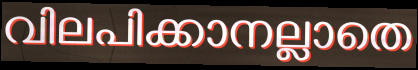
വിലപിക്കാനല്ലാതെ